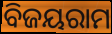
ବିଜୟରାମ